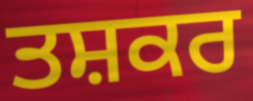
ਤਸ਼ਕਰ